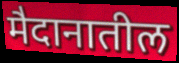
मैदानातील